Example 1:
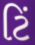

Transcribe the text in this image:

ટિં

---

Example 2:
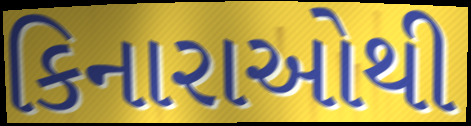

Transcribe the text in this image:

કિનારાઓથી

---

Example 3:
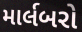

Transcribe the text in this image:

માર્લબરો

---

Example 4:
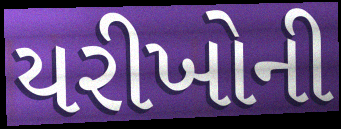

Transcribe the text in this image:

યરીખોની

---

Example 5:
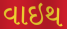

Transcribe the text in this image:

વાઇથ